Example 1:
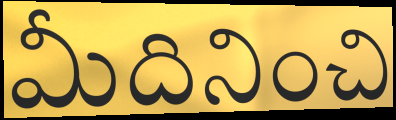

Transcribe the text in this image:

మీదినించి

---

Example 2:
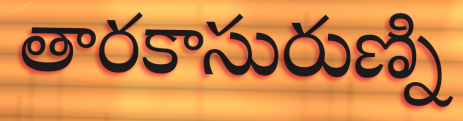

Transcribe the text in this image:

తారకాసురుణ్ని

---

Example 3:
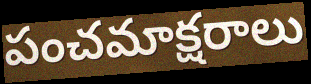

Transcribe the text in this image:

పంచమాక్షరాలు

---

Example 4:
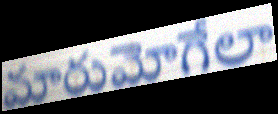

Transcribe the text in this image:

మారుమోగేలా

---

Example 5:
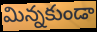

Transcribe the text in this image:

మిన్నకుండా